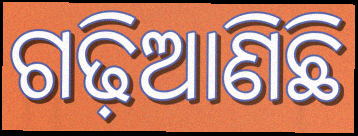
ଗଢ଼ିଆଣିଛି